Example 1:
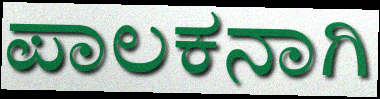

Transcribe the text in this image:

ಪಾಲಕನಾಗಿ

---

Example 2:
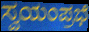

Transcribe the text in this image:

ಸ್ವಯಂಪ್ರಭೆ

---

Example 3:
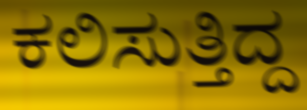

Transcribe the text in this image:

ಕಲಿಸುತ್ತಿದ್ದ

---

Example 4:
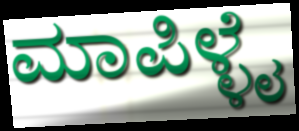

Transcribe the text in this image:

ಮಾಪಿಳ್ಳೈ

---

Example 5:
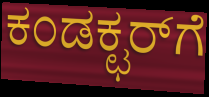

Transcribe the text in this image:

ಕಂಡಕ್ಟರ್‌ಗೆ